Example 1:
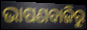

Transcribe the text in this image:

ଭାଷଣବାଜିରୁ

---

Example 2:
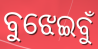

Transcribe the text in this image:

ବୁଝେଇବୁଁ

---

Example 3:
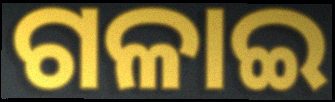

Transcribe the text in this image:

ଗଳାଇ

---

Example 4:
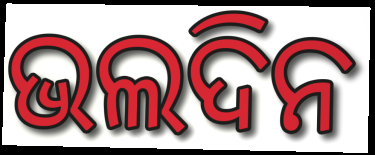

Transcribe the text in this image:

ଭଲଦିନ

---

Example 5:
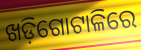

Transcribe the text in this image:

ଖଡ଼ିଗୋଟାଳିରେ